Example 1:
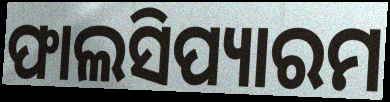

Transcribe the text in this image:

ଫାଲସିପ୍ୟାରମ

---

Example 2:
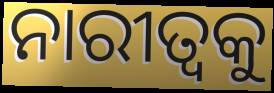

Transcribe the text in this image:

ନାରୀତ୍ୱକୁ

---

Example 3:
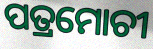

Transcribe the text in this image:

ପତ୍ରମୋଚୀ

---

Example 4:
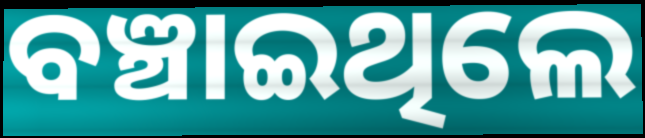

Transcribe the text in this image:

ବଞ୍ଚାଇଥିଲେ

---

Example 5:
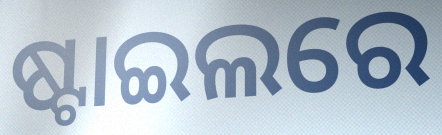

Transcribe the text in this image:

ଷ୍ଟାଇଲରେ